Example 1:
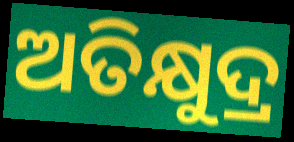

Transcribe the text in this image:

ଅତିକ୍ଷୁଦ୍ର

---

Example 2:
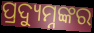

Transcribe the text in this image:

ପ୍ରଦ୍ୟୁମ୍ନଙ୍କର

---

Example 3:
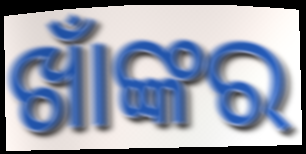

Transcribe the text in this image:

ଖାଁଙ୍କର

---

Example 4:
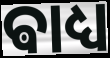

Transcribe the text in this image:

ଵାଧ୍ୟ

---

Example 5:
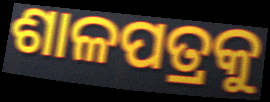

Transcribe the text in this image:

ଶାଳପତ୍ରକୁ